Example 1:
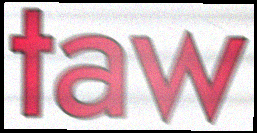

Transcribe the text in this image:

taw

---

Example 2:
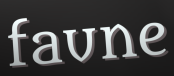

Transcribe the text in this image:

faune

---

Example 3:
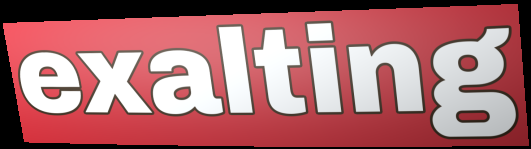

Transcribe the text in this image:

exalting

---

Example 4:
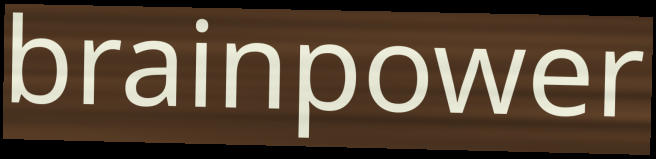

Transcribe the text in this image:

brainpower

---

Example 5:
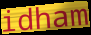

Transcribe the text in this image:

idham